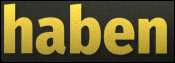
haben